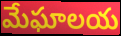
మేఘాలయ